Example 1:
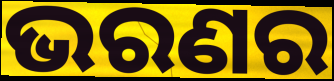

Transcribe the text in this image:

ଭରଣର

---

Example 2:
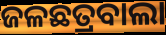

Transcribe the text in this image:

ଜଳଛତ୍ରବାଲା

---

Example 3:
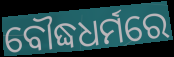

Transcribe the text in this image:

ବୌଦ୍ଧଧର୍ମରେ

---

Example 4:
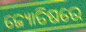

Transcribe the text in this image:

ଜ୍ୟୋତିଷରେ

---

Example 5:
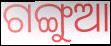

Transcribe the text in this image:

ଗଙ୍ଗୁଆ